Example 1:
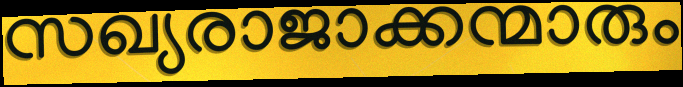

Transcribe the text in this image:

സഖ്യരാജാക്കന്മാരും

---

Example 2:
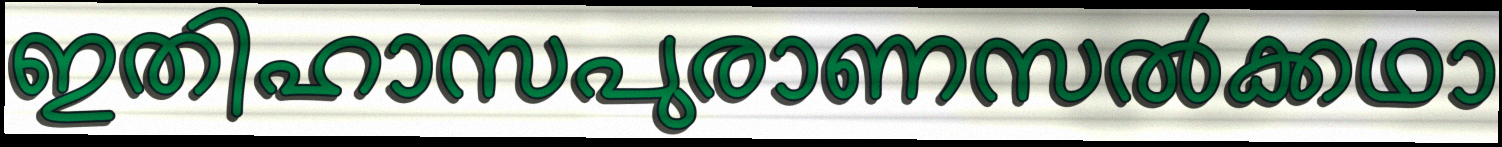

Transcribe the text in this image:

ഇതിഹാസപുരാണസൽക്കഥാ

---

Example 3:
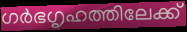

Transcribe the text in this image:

ഗർഭഗൃഹത്തിലേക്ക്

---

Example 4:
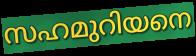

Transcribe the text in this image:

സഹമുറിയനെ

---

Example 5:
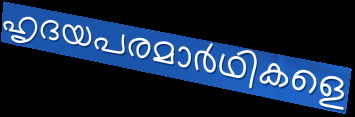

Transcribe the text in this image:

ഹൃദയപരമാർഥികളെ